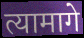
त्यामागे